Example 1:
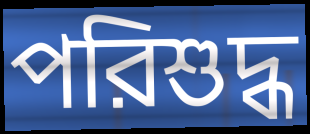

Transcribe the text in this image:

পরিশুদ্ধ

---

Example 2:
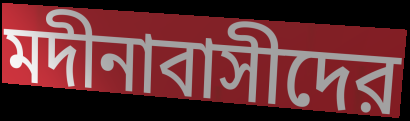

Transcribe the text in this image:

মদীনাবাসীদের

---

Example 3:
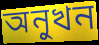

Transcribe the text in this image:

অনুখন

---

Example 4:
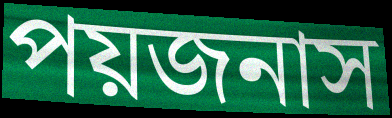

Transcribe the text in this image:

পয়জনাস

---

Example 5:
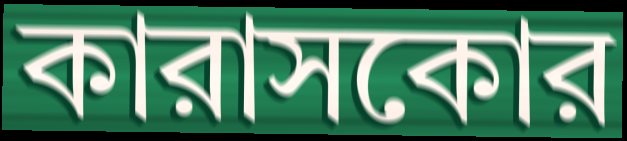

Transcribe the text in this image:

কারাসকোর